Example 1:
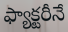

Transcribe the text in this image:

ఫ్యాక్టరీనే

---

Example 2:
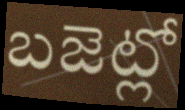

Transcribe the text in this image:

బజెట్లో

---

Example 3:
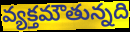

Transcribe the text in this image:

వ్యక్తమౌతున్నది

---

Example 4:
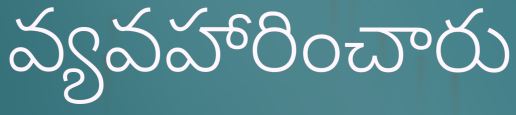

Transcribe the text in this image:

వ్యవహారించారు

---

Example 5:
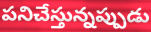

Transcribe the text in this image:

పనిచేస్తున్నప్పుడు